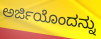
ಅರ್ಜಿಯೊಂದನ್ನು